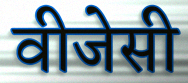
वीजेसी